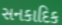
સનકાદિક